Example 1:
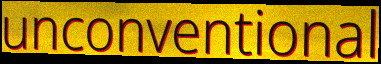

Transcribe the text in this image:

unconventional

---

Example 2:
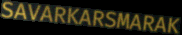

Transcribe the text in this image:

SAVARKARSMARAK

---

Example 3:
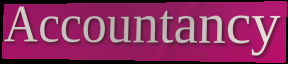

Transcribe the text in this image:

Accountancy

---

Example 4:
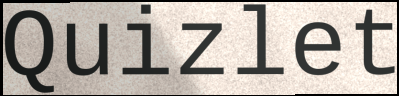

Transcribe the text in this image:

Quizlet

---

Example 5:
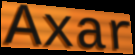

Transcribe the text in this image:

Axar